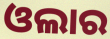
ଓଲାର